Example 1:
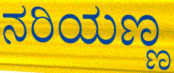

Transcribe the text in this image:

ನರಿಯಣ್ಣ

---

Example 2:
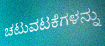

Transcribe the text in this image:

ಚಟುವಟಕೆಗಳನ್ನು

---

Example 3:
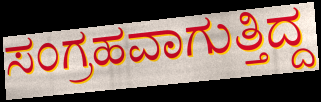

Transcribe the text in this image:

ಸಂಗ್ರಹವಾಗುತ್ತಿದ್ದ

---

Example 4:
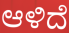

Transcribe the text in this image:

ಆಳಿದೆ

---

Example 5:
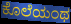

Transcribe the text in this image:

ಕೊಲೆಯಂಥ